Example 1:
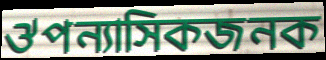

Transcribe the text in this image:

ঔপন্যাসিকজনক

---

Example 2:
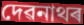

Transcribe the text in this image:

দেৱনাথৰ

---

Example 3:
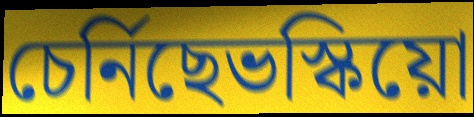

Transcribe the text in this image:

চেৰ্নিছেভস্কিয়ো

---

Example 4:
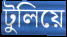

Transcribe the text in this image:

টুলিয়ে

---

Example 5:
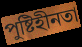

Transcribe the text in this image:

পুষ্টিহীনতা